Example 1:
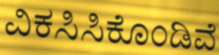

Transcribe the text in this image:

ವಿಕಸಿಸಿಕೊಂಡಿವೆ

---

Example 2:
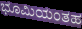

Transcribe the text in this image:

ಭೂಮಿಯಂತಹ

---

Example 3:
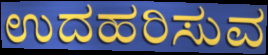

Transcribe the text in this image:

ಉದಹರಿಸುವ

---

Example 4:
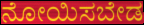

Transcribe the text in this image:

ನೋಯಿಸಬೇಡ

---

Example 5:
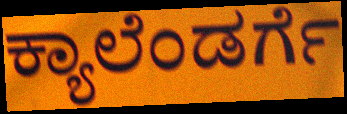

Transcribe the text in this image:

ಕ್ಯಾಲೆಂಡರ್ಗೆ